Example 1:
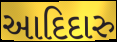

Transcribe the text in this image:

આદિદારુ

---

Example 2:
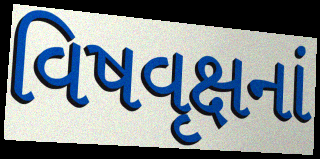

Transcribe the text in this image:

વિષવૃક્ષનાં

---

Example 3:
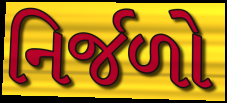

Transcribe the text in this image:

નિર્જળો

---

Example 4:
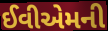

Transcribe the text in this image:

ઈવીએમની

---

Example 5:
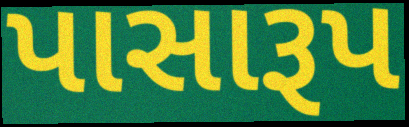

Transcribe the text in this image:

પાસારૂપ